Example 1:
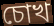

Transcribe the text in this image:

চোখ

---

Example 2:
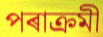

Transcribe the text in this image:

পৰাক্ৰমী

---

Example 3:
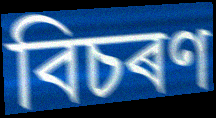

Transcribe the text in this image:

বিচৰণ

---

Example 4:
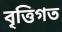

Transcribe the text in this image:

বৃত্তিগত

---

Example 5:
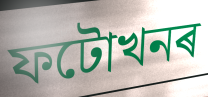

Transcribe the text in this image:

ফটোখনৰ